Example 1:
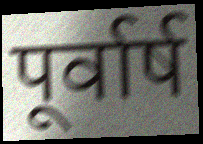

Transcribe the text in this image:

पूर्वार्ष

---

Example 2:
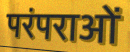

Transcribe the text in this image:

परंपराओं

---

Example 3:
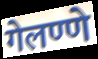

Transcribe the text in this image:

गेलण्णे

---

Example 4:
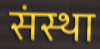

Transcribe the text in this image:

संस्था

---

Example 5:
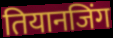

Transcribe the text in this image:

तियानजिंग